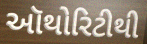
ઑથોરિટીથી